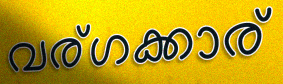
വര്ഗക്കാര്